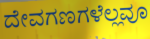
ದೇವಗಣಗಳೆಲ್ಲವೂ